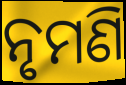
ନୃମଣି